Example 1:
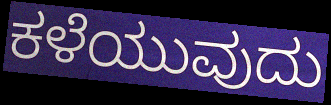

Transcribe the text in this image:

ಕಳೆಯುವುದು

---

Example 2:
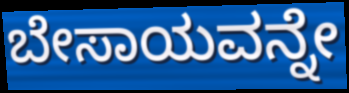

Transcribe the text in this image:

ಬೇಸಾಯವನ್ನೇ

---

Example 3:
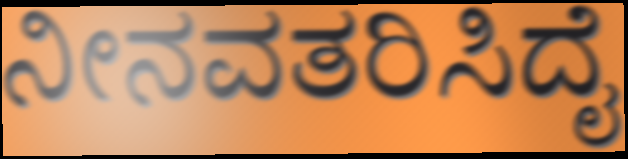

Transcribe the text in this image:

ನೀನವತರಿಸಿದೈ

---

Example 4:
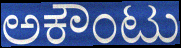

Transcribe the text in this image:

ಅಕೌಂಟು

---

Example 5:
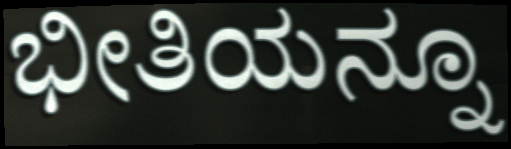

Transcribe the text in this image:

ಭೀತಿಯನ್ನೂ